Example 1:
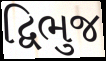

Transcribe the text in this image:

દ્વિભુજ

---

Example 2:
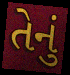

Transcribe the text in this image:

તેનું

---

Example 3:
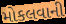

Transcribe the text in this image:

મોકલવાની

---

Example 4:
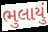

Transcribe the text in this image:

ભુલાયું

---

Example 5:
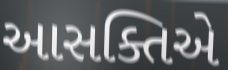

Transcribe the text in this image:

આસક્તિએ